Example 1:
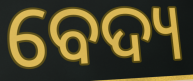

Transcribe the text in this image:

ବେଦ୍ୟ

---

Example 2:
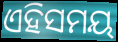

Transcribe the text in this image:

ଏହିସମୟ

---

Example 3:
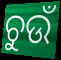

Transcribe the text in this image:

ଚୁଉଁ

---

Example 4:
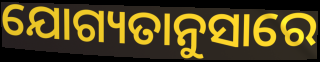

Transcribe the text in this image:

ଯୋଗ୍ୟତାନୁସାରେ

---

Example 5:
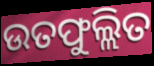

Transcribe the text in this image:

ଉତଫୁଲ୍ଲିତ